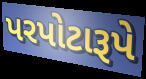
પરપોટારૂપે